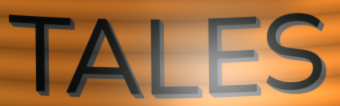
TALES